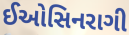
ઈઓસિનરાગી